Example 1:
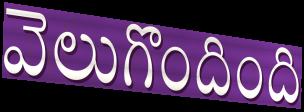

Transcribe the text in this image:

వెలుగొందింది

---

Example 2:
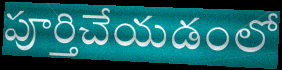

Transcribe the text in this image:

పూర్తిచేయడంలో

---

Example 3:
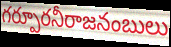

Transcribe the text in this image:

గర్పూరనీరాజనంబులు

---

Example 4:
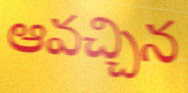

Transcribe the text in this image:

ఆవచ్చిన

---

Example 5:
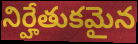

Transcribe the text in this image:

నిర్హేతుకమైన